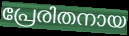
പ്രേരിതനായ